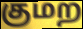
குமற